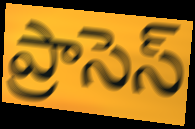
ప్రాసెస్